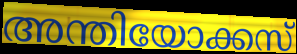
അന്തിയോക്കസ്